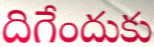
దిగేందుకు